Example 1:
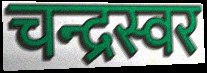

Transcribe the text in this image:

चन्द्रस्वर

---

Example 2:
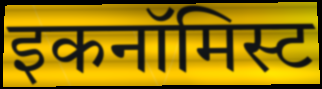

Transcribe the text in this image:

इकनॉमिस्‍ट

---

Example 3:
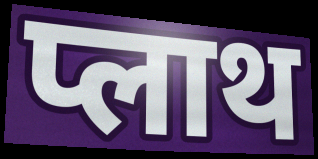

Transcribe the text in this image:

प्लाथ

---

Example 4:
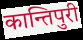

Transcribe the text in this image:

कान्तिपुरी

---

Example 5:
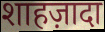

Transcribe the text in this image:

शाहज़ादा